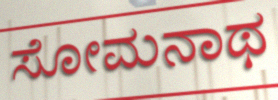
ಸೋಮನಾಥ